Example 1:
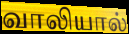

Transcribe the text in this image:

வாலியால்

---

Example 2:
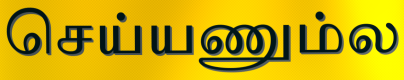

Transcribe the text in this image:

செய்யணும்ல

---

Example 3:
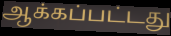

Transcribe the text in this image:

ஆக்கப்பட்டது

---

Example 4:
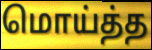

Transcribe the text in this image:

மொய்த்த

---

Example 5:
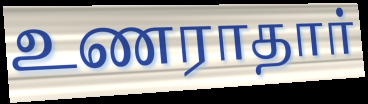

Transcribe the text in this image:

உணராதார்